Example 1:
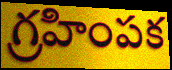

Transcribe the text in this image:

గ్రహింపక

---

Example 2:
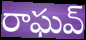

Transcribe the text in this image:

రాఘవ్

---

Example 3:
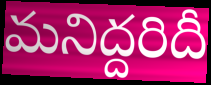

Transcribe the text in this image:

మనిద్దరిదీ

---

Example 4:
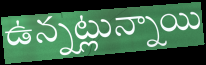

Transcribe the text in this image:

ఉన్నట్లున్నాయి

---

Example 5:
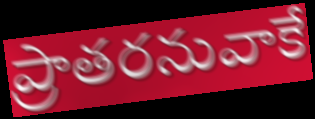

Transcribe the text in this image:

ప్రాతరనువాకే